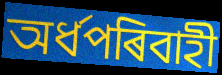
অৰ্ধপৰিবাহী